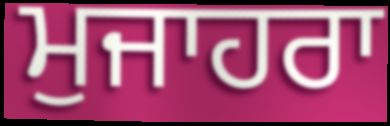
ਮੁਜਾਹਰਾ